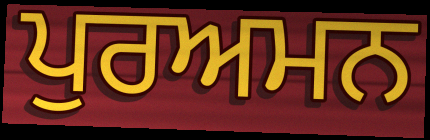
ਪੁਰਅਮਨ